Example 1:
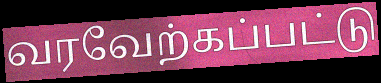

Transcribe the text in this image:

வரவேற்கப்பட்டு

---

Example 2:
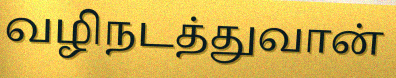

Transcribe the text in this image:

வழிநடத்துவான்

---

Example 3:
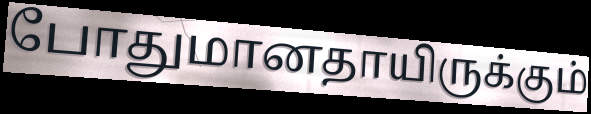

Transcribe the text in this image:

போதுமானதாயிருக்கும்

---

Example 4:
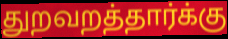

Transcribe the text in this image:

துறவறத்தார்க்கு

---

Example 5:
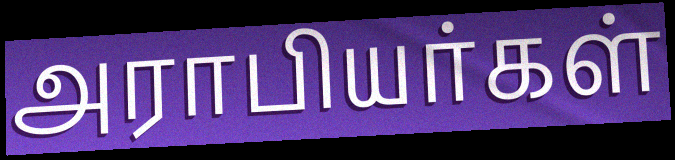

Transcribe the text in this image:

அராபியர்கள்